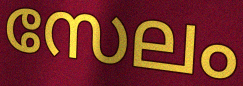
സേലം